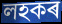
লহকৰ